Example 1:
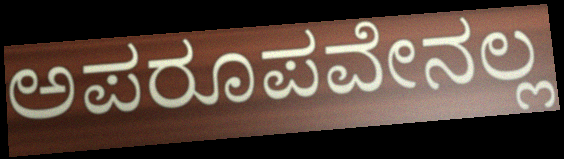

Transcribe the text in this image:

ಅಪರೂಪವೇನಲ್ಲ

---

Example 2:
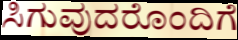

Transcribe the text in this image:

ಸಿಗುವುದರೊಂದಿಗೆ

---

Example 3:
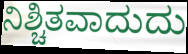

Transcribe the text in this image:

ನಿಶ್ಚಿತವಾದುದು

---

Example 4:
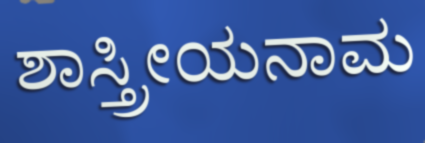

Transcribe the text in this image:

ಶಾಸ್ತ್ರೀಯನಾಮ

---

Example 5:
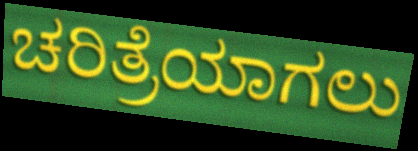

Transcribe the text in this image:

ಚರಿತ್ರೆಯಾಗಲು